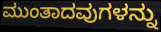
ಮುಂತಾದವುಗಳನ್ನು